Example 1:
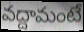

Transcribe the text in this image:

వద్దామంటే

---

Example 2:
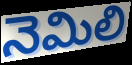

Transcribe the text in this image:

నెమిలి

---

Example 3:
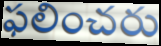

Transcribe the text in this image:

ఫలించరు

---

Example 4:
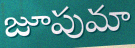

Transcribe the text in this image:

జూపుమా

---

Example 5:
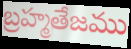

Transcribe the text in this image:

బ్రహ్మతేజము